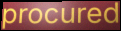
procured